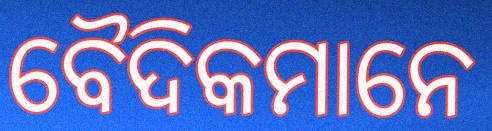
ବୈଦିକମାନେ